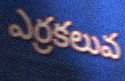
ఎర్రకలువ